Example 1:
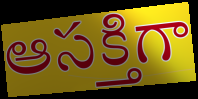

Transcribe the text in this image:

ఆసక్తిగా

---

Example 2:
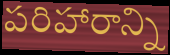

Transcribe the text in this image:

పరిహారాన్ని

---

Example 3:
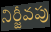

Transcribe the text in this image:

నిర్జీవపు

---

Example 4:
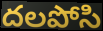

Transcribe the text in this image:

దలపోసి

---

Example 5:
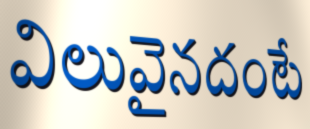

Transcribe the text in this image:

విలువైనదంటే